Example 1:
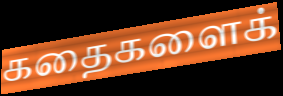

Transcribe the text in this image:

கதைகளைக்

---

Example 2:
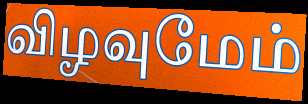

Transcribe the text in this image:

விழவுமேம்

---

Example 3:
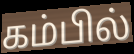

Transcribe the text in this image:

கம்பில்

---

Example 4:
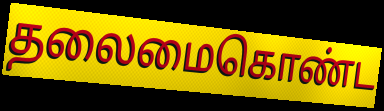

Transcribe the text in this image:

தலைமைகொண்ட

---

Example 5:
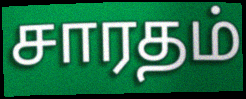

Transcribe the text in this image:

சாரதம்